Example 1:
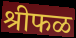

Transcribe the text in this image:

श्रीफळ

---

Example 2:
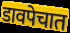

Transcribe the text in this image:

डावपेचात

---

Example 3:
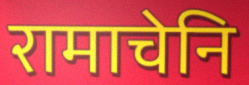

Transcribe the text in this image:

रामाचेनि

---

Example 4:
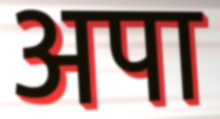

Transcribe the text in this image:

अपा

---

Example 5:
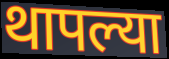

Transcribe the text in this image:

थापल्या